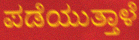
ಪಡೆಯುತ್ತಾಳೆ